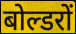
बोल्डरों